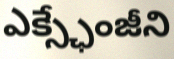
ఎక్స్ఛేంజీని